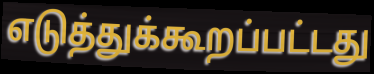
எடுத்துக்கூறப்பட்டது